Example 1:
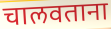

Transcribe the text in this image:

चालवताना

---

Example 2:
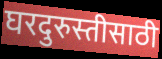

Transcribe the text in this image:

घरदुरुस्तीसाठी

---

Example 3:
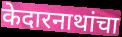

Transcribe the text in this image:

केदारनाथांचा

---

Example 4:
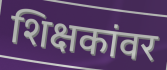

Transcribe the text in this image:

शिक्षकांवर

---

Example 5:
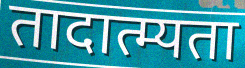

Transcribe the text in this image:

तादात्म्यता